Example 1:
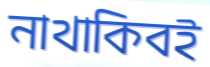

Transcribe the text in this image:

নাথাকিবই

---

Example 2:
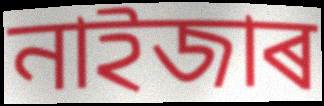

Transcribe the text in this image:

নাইজাৰ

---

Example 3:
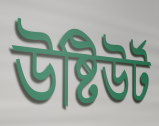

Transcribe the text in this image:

উষ্টিউৰ্ট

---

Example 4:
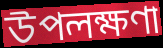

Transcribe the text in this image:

উপলক্ষণা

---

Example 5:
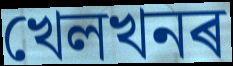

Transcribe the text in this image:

খেলখনৰ